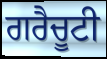
ਗਰੈਚੂਟੀ